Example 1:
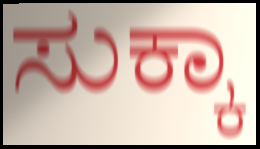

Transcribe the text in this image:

ಸುಕ್ಕಾ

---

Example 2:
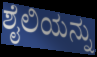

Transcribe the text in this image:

ಶೈಲಿಯನ್ನು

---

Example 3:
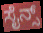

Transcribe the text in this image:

ಸೈನ್ಸ್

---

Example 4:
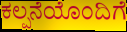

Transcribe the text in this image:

ಕಲ್ಪನೆಯೊಂದಿಗೆ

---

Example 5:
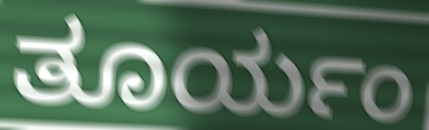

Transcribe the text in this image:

ತೂರ್ಯಂ